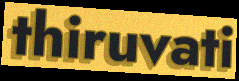
thiruvati